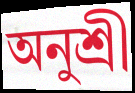
অনুশ্রী